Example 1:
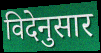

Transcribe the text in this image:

विदेनुसार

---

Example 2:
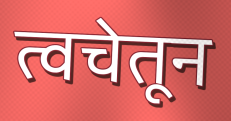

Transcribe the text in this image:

त्वचेतून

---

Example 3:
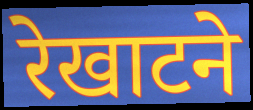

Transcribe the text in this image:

रेखाटने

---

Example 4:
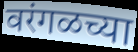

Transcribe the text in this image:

वरंगळच्या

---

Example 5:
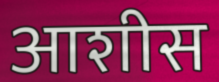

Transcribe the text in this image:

आशीस